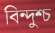
বিন্দুশ্চ